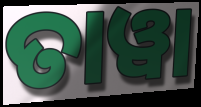
ତାୱା